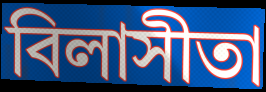
বিলাসীতা